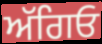
ਅੱਗਿਓ